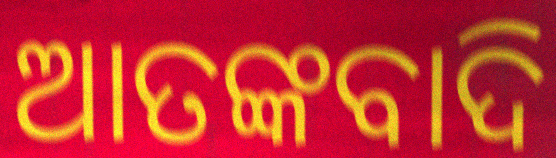
ଆତଙ୍କବାଦି